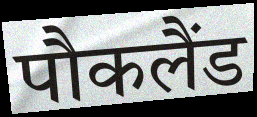
पौकलैंड